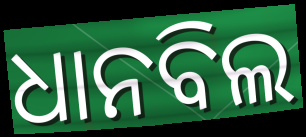
ଧାନବିଲ